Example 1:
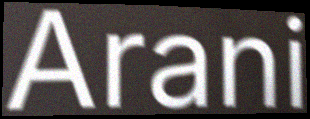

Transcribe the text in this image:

Arani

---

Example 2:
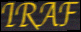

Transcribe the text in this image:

IRAF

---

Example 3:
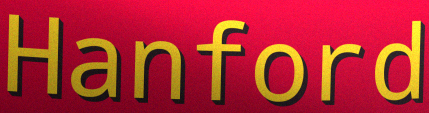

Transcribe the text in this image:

Hanford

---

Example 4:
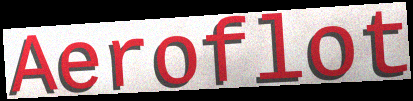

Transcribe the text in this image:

Aeroflot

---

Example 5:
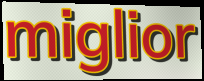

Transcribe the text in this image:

miglior